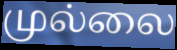
முல்லை